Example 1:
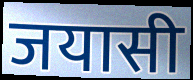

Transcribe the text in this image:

जयासी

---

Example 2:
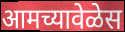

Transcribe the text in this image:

आमच्यावेळेस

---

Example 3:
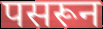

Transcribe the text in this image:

पसरून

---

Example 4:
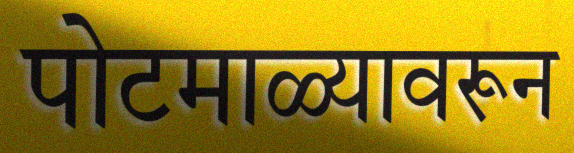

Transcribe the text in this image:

पोटमाळ्यावरून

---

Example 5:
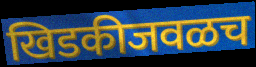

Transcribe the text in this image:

खिडकीजवळच